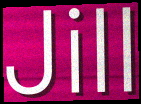
Jill